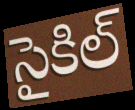
సైకిల్